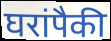
घरांपैकी